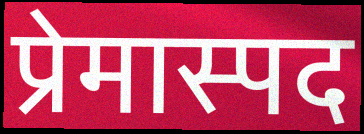
प्रेमास्पद